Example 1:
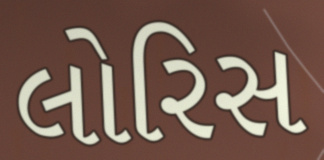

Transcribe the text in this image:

લોરિસ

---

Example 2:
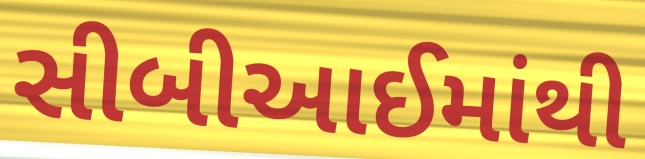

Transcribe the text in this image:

સીબીઆઈમાંથી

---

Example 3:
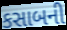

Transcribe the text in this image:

કસાબની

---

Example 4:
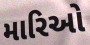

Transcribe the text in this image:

મારિઓ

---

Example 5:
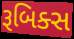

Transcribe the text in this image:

રૂબિક્સ